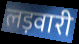
लड़वारी